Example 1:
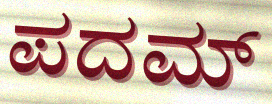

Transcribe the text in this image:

ಪದಮ್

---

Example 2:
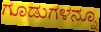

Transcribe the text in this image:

ಗೂಡುಗಳನ್ನೂ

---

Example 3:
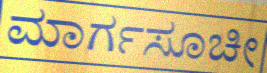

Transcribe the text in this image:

ಮಾರ್ಗಸೂಚೀ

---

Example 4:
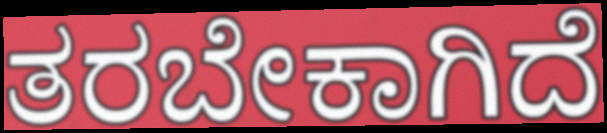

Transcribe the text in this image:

ತರಬೇಕಾಗಿದೆ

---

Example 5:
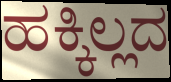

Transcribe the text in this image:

ಹಕ್ಕಿಲ್ಲದ